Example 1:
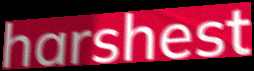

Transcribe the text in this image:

harshest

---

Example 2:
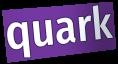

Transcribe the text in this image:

quark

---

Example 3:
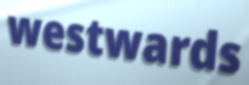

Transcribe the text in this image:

westwards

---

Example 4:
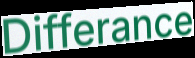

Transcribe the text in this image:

Differance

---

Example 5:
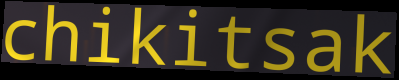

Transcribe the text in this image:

chikitsak